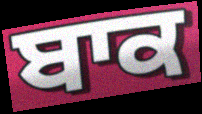
ਬਾਕ